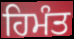
ਹਿਮੰਤ